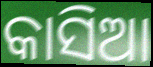
କାସିଆ